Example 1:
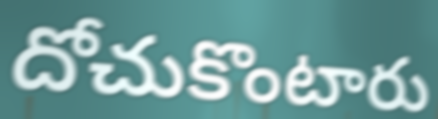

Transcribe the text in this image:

దోచుకొంటారు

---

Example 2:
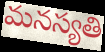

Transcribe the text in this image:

మనస్యతి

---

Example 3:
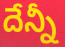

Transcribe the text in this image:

దేన్నీ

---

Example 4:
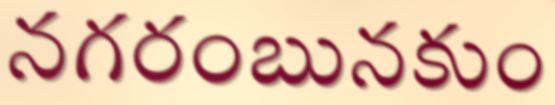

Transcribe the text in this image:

నగరంబునకుం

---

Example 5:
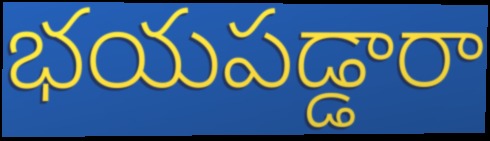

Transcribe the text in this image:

భయపడ్డారా